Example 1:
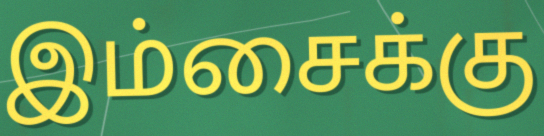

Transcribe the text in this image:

இம்சைக்கு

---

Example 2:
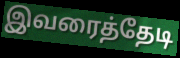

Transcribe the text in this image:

இவரைத்தேடி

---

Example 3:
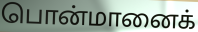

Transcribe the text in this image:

பொன்மானைக்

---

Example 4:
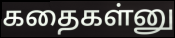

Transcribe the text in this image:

கதைகள்னு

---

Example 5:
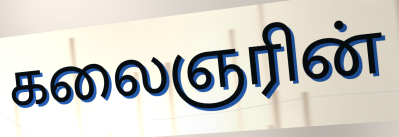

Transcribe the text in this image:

கலைஞரின்